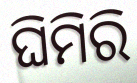
ଘିମିରି